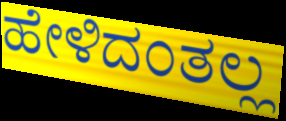
ಹೇಳಿದಂತಲ್ಲ